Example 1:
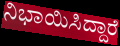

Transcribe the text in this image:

ನಿಭಾಯಿಸಿದ್ದಾರೆ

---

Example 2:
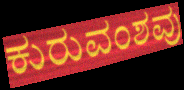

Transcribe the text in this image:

ಕುರುವಂಶವು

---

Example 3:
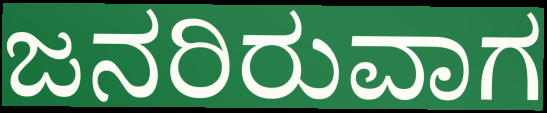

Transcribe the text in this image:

ಜನರಿರುವಾಗ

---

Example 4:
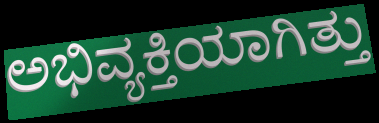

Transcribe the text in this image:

ಅಭಿವ್ಯಕ್ತಿಯಾಗಿತ್ತು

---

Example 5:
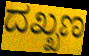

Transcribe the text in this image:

ದಖ್ಖಣ